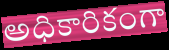
అధికారికంగా